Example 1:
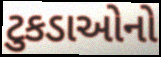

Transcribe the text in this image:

ટુકડાઓનો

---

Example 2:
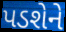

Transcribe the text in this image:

પડશેને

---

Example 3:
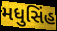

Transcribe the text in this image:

મધુસિંહ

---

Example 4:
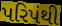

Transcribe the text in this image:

પરિપંથી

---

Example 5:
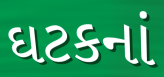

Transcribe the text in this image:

ઘટકનાં